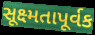
સૂક્ષ્મતાપૂર્વક